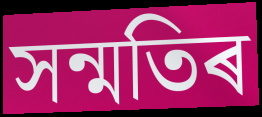
সন্মতিৰ